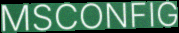
MSCONFIG